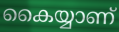
കൈയ്യാണ്